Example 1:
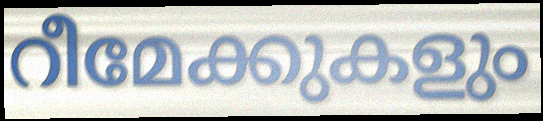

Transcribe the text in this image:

റീമേക്കുകളും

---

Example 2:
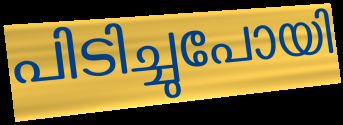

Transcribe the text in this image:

പിടിച്ചുപോയി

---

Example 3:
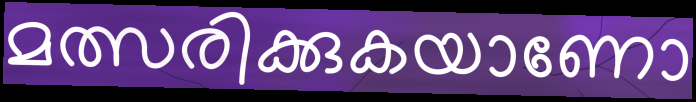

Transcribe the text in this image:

മത്സരിക്കുകയാണോ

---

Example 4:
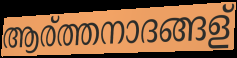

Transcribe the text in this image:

ആര്ത്തനാദങ്ങള്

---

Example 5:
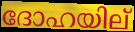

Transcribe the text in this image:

ദോഹയില്